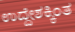
ಉದ್ದೇಶಕ್ಕಿಂತ